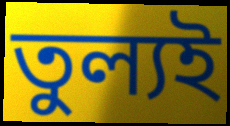
তুল্যই